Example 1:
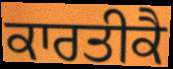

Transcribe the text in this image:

ਕਾਰਤੀਕੈ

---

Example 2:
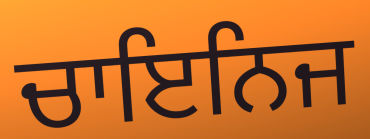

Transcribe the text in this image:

ਚਾਇਨਿਜ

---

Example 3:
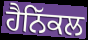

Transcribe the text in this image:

ਹੈਨਿੱਕਲ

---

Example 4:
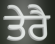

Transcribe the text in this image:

ਤੇਰੈ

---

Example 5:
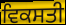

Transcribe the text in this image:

ਵਿਕਸਤੀ